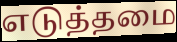
எடுத்தமை